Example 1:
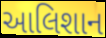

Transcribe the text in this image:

આલિશાન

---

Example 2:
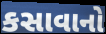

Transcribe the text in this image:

કસાવાનો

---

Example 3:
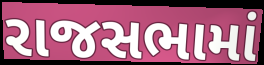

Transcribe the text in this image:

રાજસભામાં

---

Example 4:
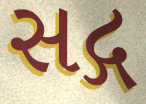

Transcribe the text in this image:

સદ્ગ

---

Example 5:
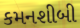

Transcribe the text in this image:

કમનશીબી